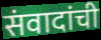
संवादांची